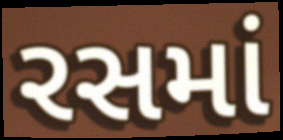
રસમાં